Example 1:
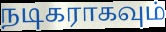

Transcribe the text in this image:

நடிகராகவும்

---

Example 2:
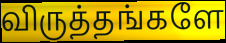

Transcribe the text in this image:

விருத்தங்களே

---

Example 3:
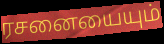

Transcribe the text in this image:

ரசனையையும்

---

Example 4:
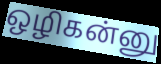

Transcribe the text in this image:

ஒழிகன்னு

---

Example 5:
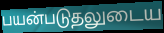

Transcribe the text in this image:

பயன்படுதலுடைய